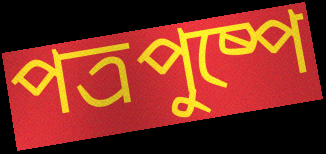
পত্রপুষ্পে